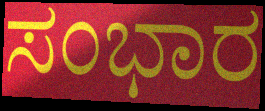
ಸಂಭಾರ